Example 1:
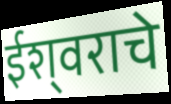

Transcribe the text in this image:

ईश्वराचे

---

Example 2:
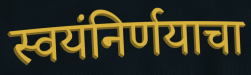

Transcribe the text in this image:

स्वयंनिर्णयाचा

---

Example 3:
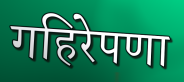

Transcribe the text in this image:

गहिरेपणा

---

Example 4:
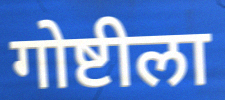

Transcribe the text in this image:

गोष्टीला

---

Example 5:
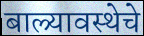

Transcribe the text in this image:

बाल्यावस्थेचे